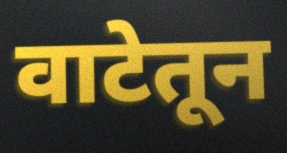
वाटेतून